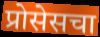
प्रोसेसचा